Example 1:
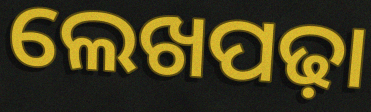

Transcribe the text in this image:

ଲେଖପଢ଼ା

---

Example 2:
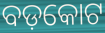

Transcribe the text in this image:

ବଡ଼କୋଟ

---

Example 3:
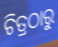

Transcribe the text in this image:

ଚିତ୍ରଠାରୁ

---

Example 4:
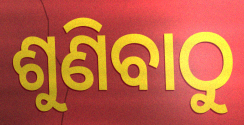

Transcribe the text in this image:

ଶୁଣିବାଠୁ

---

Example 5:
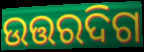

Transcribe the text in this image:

ଉତ୍ତରଦିଗ